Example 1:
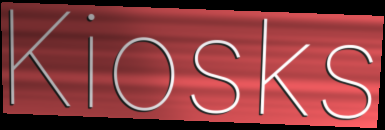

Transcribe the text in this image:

Kiosks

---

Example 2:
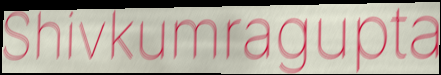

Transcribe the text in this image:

Shivkumragupta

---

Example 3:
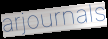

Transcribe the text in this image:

arjournals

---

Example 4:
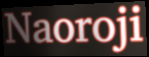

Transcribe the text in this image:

Naoroji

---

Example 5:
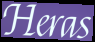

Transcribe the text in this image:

Heras